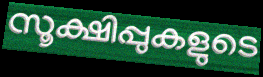
സൂക്ഷിപ്പുകളുടെ